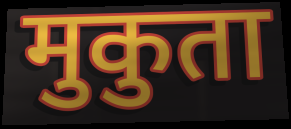
मुकुता